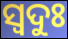
ସ୍ବଦୁଃ